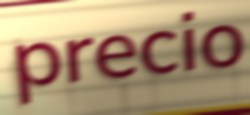
precio